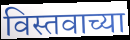
विस्तवाच्या